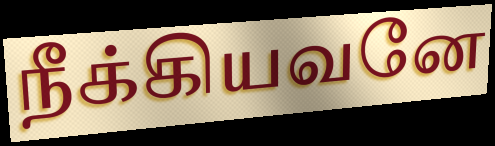
நீக்கியவனே